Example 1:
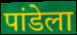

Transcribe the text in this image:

पांडेला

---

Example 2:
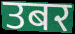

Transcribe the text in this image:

उबर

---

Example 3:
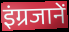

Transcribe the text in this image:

इंग्रजानें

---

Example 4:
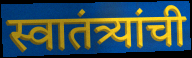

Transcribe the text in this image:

स्वातंत्र्यांची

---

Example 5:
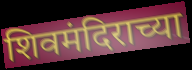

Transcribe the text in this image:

शिवमंदिराच्या